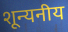
शून्यनीय